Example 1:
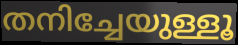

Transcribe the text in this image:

തനിച്ചേയുള്ളൂ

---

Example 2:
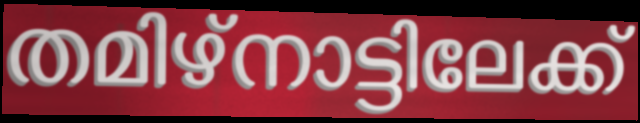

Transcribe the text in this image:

തമിഴ്നാട്ടിലേക്ക്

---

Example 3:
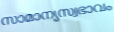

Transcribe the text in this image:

സാമാന്യസ്വഭാവം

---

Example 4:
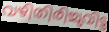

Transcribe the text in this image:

വഴിതിരിച്ചുവിട്ട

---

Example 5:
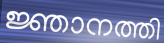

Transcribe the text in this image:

ജ്ഞാനത്തി